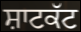
ਸ਼ਾਟਕੱਟ